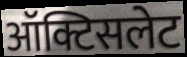
ऑक्टिसलेट